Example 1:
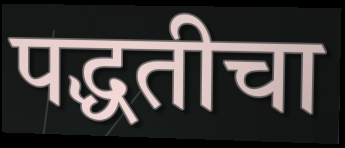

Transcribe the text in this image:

पद्धतीचा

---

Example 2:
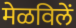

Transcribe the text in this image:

मेळविलें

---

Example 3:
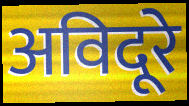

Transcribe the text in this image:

अविदूरे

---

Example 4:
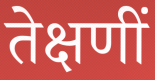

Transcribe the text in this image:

तेक्षणीं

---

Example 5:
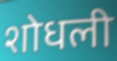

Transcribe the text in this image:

शोधली